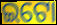
ଇଟୋ